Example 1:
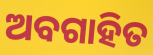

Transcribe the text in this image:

ଅବଗାହିତ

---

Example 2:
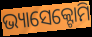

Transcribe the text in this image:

ଭ୍ୟାସେକ୍ଟୋମି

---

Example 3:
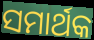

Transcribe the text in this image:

ସମାର୍ଥକ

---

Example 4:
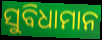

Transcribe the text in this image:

ସୁବିଧାମାନ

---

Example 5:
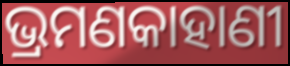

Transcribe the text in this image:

ଭ୍ରମଣକାହାଣୀ